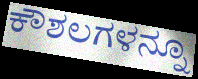
ಕೌಶಲಗಳನ್ನೂ